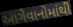
આગેવાનોમાંથી